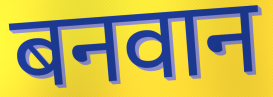
बनवान